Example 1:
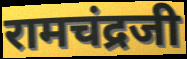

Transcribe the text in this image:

रामचंद्रजी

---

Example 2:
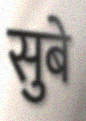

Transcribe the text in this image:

सुबे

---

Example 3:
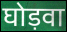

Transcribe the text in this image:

घोड़वा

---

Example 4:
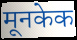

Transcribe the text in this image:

मूनकेक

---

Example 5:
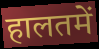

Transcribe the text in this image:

हालतमें